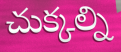
చుక్కల్ని